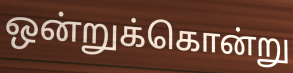
ஒன்றுக்கொன்று